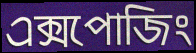
এক্সপোজিং